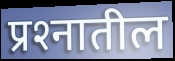
प्रश्नातील